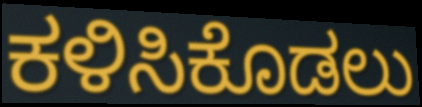
ಕಳಿಸಿಕೊಡಲು